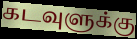
கடவுளுக்கு